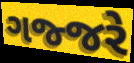
ગજ્જરે